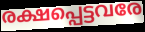
രക്ഷപ്പെട്ടവരേ